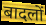
बादलों